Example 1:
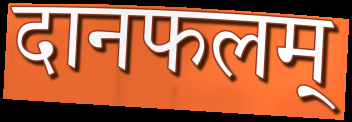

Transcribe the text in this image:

दानफलम्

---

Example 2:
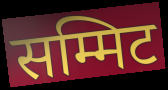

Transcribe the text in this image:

सम्मिट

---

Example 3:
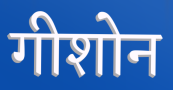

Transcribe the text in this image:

गीशोन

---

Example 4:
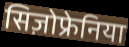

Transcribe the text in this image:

सिज़ोफ्रेनिया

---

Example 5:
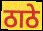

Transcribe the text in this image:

ठाठे